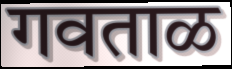
गवताळ